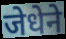
जेधेने